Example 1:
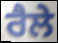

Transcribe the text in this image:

ਰੈਲੇ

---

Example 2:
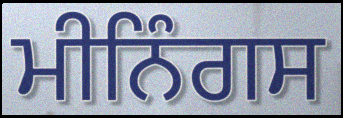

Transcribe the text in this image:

ਮੀਨਿੰਗਸ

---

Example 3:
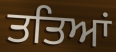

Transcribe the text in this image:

ਤਤਿਆਂ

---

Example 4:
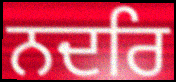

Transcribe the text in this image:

ਨਦਰਿ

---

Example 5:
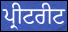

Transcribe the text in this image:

ਪ੍ਰੀਟਰੀਟ